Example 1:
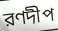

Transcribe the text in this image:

রণদীপ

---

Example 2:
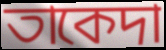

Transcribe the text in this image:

তাকেদা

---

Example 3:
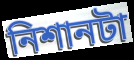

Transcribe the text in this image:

নিশানটা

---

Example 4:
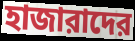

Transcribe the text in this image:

হাজারাদের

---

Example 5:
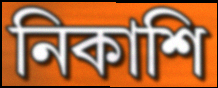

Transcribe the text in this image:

নিকাশি